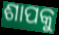
ଶାପକୁ